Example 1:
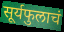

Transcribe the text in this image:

सूर्यफुलाचं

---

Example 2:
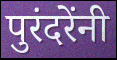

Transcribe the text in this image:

पुरंदरेंनी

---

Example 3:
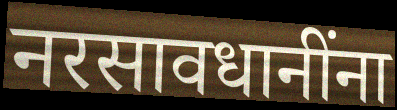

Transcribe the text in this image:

नरसावधानींना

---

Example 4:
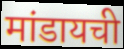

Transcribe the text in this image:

मांडायची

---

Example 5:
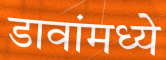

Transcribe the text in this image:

डावांमध्ये